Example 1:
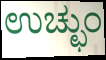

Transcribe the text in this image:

ಉಚ್ಛುಂ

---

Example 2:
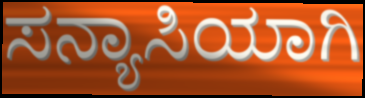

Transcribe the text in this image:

ಸನ್ಯಾಸಿಯಾಗಿ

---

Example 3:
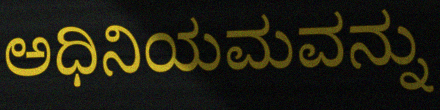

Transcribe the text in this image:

ಅಧಿನಿಯಮವನ್ನು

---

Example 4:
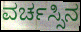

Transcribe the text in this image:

ವರ್ಚಸ್ಸಿನ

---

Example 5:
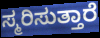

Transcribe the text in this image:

ಸ್ಮರಿಸುತ್ತಾರೆ